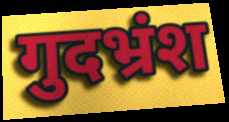
गुदभ्रंश